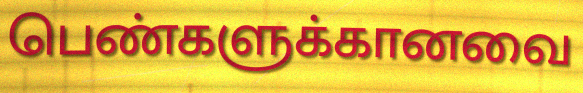
பெண்களுக்கானவை